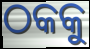
ଠକକୁ